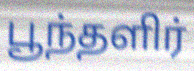
பூந்தளிர்